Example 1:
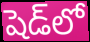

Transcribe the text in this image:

షెడ్‌లో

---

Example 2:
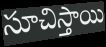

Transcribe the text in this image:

సూచిస్తాయి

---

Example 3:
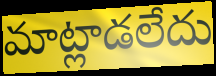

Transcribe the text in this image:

మాట్లాడలేదు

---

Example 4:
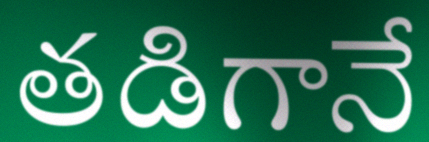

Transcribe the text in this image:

తడిగానే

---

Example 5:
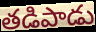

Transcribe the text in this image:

తడిపాడు